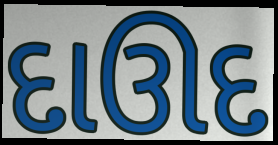
દાઊદ